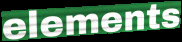
elements